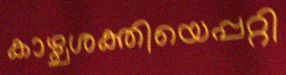
കാഴ്ചശക്തിയെപ്പറ്റി